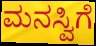
ಮನಸ್ವಿಗೆ